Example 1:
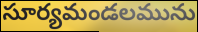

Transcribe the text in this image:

సూర్యమండలమును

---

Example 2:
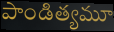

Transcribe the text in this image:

పాండిత్యమూ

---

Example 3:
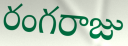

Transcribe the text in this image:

రంగరాజు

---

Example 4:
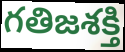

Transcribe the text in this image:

గతిజశక్తి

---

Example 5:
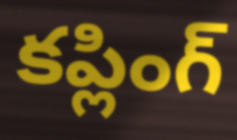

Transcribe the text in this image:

కప్లింగ్